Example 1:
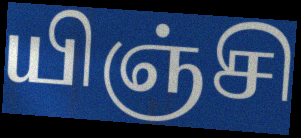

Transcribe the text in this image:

யிஞ்சி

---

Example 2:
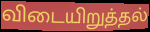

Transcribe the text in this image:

விடையிறுத்தல்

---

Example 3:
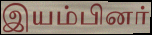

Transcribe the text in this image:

இயம்பினர்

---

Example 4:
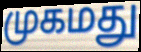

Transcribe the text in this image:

முகமது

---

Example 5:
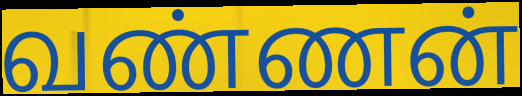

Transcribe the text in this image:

வண்ணன்